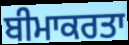
ਬੀਮਾਕਰਤਾ